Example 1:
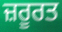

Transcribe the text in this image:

ਜ਼ਰੂਰਤ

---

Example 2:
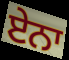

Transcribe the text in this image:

ਏਨਾ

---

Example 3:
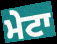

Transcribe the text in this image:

ਮੇਟਾ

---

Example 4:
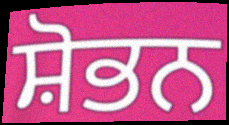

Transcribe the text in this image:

ਸ਼ੋਭਨ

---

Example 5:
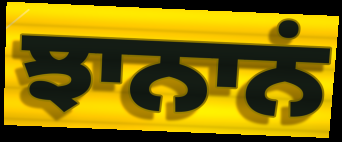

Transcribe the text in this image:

ਝਾਨਾਨਂ